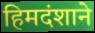
हिमदंशाने